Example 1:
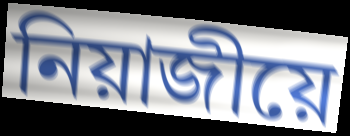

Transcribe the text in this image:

নিয়াজীয়ে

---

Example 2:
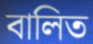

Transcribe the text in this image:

বালিত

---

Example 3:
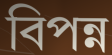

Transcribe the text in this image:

বিপন্ন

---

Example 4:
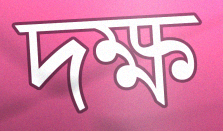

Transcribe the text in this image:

দক্ষ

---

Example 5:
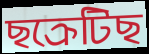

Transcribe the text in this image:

ছক্ৰেটিছ